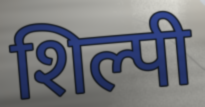
शिल्‍पी